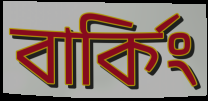
বার্কিং